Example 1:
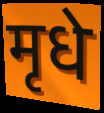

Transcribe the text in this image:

मृधे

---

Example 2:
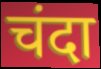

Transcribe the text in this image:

चंदा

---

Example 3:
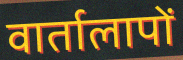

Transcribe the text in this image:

वार्तालापों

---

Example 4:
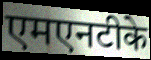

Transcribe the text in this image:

एमएनटीके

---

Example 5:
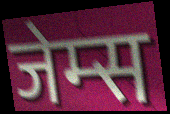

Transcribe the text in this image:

जेम्स